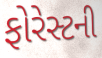
ફોરેસ્ટની